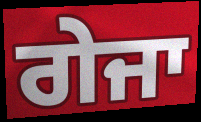
ਗੇਜਾ